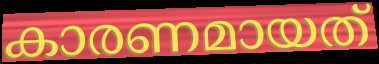
കാരണമായത്